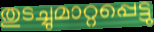
തുടച്ചുമാറ്റപ്പെട്ടു